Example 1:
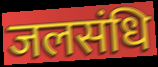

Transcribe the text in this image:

जलसंधि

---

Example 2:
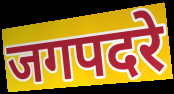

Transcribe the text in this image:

जगपदरे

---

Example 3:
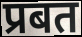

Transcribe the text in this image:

प्रबत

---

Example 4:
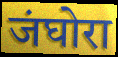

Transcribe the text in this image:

जंघोरा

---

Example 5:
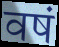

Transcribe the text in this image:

वषं